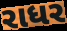
રાધર